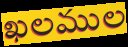
ఖలముల